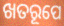
ଖତରୂପେ